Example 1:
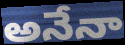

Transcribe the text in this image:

అనేనా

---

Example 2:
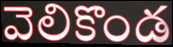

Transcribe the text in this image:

వెలికొండ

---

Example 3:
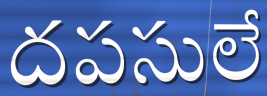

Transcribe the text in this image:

దపసులే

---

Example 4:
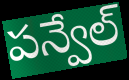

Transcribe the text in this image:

పన్వేల్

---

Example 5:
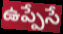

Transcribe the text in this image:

ఉప్పేసే